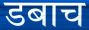
डबाच